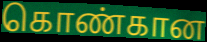
கொண்கான